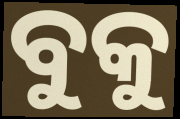
ବୁକୁ